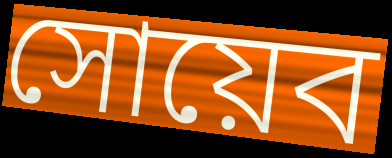
সোয়েব